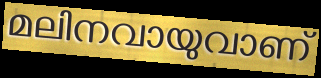
മലിനവായുവാണ്